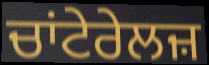
ਚਾਂਟੇਰੇਲਜ਼